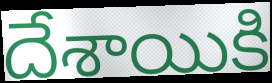
దేశాయికి